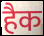
हैक